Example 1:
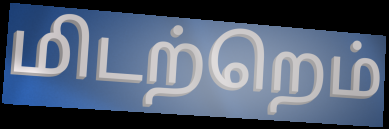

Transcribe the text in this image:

மிடற்றெம்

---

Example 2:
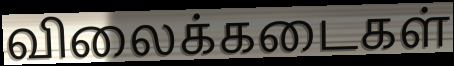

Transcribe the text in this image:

விலைக்கடைகள்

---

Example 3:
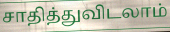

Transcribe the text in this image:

சாதித்துவிடலாம்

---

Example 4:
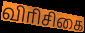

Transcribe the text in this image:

விரிசிகை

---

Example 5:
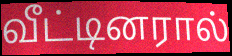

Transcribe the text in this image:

வீட்டினரால்